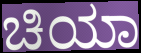
ಚಿಯಾ